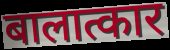
बालात्कार